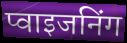
प्वाइजनिंग